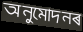
অনুমোদনৰ